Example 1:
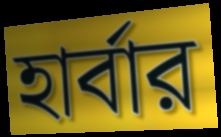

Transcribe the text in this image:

হার্বার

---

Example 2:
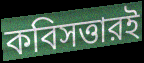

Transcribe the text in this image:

কবিসত্তারই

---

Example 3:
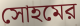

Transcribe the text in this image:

সোহমের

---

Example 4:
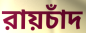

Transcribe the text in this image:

রায়চাঁদ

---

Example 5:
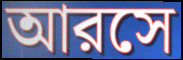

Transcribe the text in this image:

আরসে